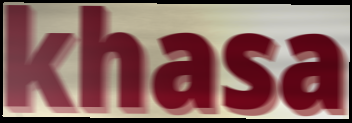
khasa